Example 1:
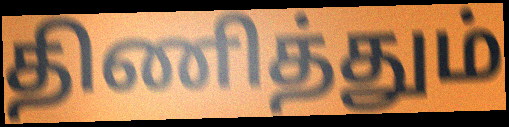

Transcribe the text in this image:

திணித்தும்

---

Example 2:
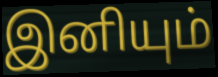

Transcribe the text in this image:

இனியும்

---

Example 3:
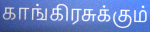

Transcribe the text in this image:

காங்கிரசுக்கும்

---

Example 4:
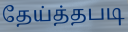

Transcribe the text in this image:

தேய்த்தபடி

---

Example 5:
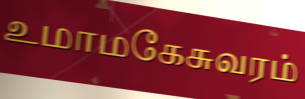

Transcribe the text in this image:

உமாமகேசுவரம்